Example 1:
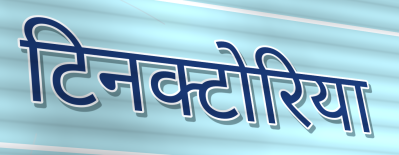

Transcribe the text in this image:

टिनक्टोरिया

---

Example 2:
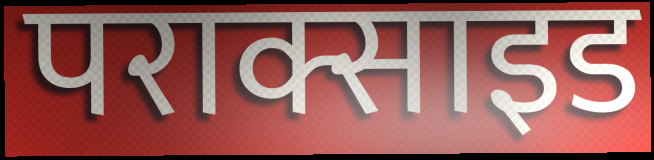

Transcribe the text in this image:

पराक्साइड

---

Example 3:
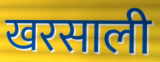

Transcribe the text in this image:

खरसाली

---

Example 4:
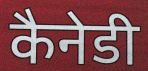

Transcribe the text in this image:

कैनेडी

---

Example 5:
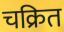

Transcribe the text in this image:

चक्रित